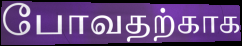
போவதற்காக